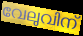
വേലുവിന്